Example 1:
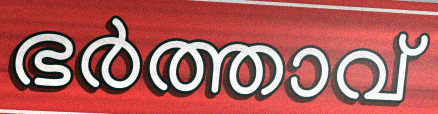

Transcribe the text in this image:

ഭർത്താവ്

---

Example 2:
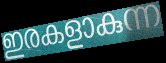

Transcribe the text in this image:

ഇരകളാകുന്ന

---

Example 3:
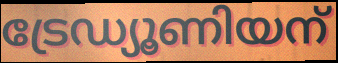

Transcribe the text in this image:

ട്രേഡ്യൂണിയന്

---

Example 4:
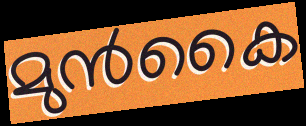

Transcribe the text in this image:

മുൻകൈ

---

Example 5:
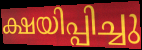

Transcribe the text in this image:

ക്ഷയിപ്പിച്ചു